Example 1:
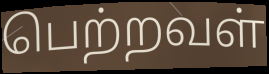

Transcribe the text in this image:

பெற்றவள்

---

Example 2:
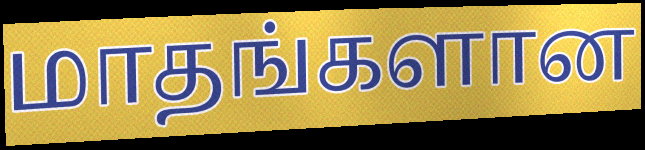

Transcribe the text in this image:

மாதங்களான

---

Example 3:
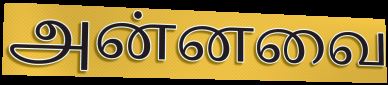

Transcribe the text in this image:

அன்னவை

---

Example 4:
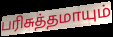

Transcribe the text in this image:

பரிசுத்தமாயும்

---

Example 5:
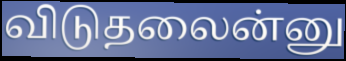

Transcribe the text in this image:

விடுதலைன்னு